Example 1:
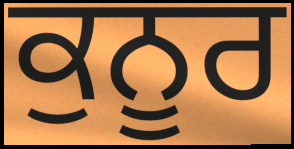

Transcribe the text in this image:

ਕੁਨੂਰ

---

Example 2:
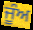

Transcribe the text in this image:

ਜੂੰਅ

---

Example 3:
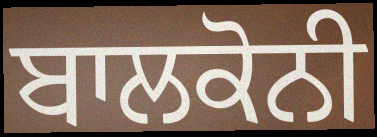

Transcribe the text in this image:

ਬਾਲਕੋਨੀ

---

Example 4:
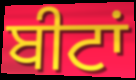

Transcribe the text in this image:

ਬੀਟਾਂ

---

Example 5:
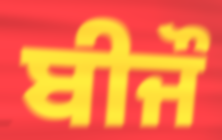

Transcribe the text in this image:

ਬੀਜੌ